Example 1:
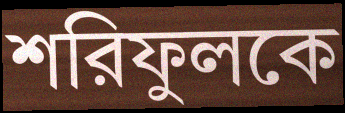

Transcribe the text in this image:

শরিফুলকে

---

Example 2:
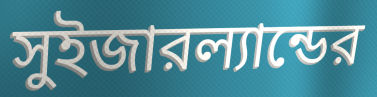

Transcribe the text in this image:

সুইজারল্যান্ডের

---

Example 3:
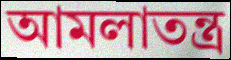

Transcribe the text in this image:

আমলাতন্ত্র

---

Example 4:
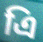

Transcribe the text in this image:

এি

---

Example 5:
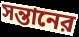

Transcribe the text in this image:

সন্তানের